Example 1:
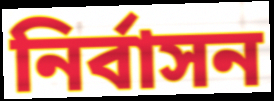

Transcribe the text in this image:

নিৰ্বাসন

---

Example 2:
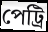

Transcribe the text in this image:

পেট্ৰি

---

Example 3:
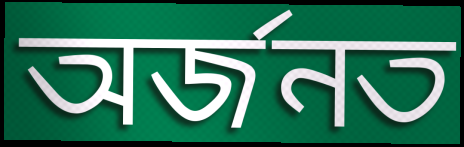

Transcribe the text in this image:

অৰ্জনত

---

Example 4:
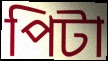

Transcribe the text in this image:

পিটা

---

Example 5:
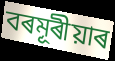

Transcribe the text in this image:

বৰমূৰীয়াৰ